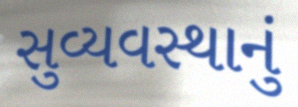
સુવ્યવસ્થાનું